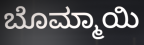
ಬೊಮ್ಮಾಯಿ